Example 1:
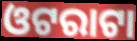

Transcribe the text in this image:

ଓଟରାଟା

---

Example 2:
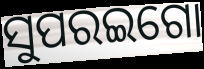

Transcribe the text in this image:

ସୁପରଇଗୋ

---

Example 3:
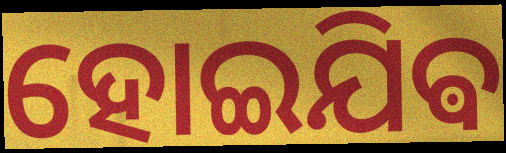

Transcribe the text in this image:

ହୋଇଯିଵ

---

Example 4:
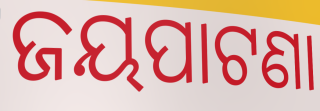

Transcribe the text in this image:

ଜୟପାଟଣା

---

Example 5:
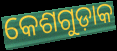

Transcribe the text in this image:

କେଶଗୁଡ଼ାକ